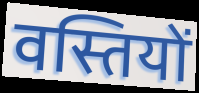
वस्तियों